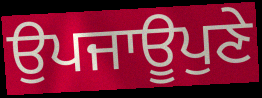
ਉਪਜਾਊਪੁਣੇ